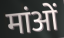
मांओं